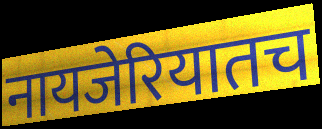
नायजेरियातच